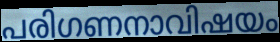
പരിഗണനാവിഷയം